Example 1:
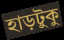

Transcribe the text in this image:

হাড়টুকু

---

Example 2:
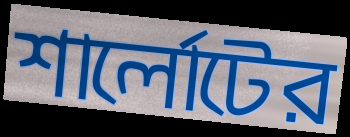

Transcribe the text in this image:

শার্লোটের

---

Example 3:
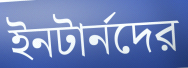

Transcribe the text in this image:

ইনটার্নদের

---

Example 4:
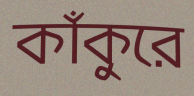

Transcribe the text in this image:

কাঁকুরে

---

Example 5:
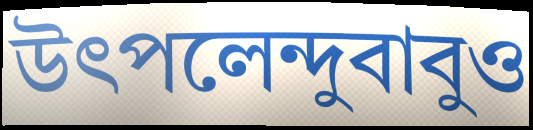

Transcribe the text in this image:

উৎপলেন্দুবাবুও